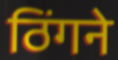
ठिंगने